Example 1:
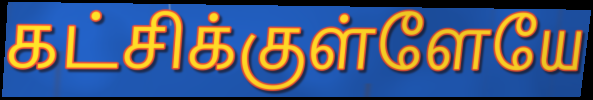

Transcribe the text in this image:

கட்சிக்குள்ளேயே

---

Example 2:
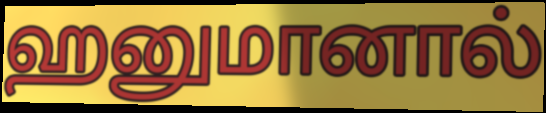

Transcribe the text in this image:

ஹனுமானால்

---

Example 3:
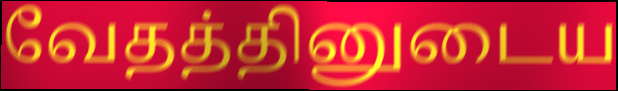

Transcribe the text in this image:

வேதத்தினுடைய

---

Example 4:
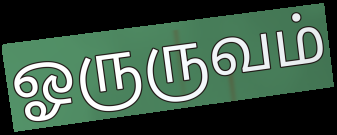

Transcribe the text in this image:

ஓருருவம்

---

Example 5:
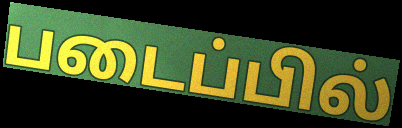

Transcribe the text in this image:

படைப்பில்